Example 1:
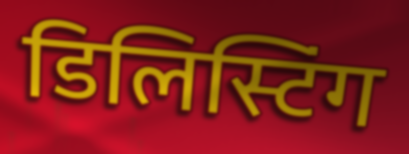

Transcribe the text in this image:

डिलिस्टिंग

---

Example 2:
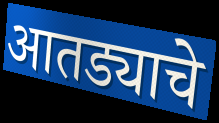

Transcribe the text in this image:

आतड्याचे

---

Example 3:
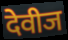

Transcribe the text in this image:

देवीज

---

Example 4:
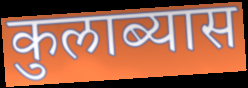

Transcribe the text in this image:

कुलाब्यास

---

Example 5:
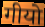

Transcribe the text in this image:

गीयो